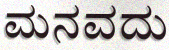
ಮನವದು